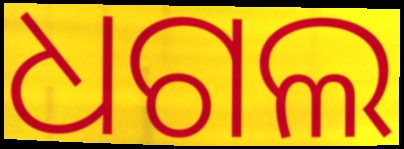
ଧଗଲ